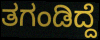
ತಗಂಡಿದ್ದೆ